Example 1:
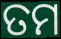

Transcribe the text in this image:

ତମ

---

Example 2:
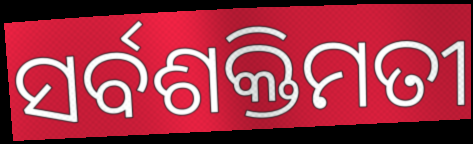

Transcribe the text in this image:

ସର୍ବଶକ୍ତିମତୀ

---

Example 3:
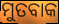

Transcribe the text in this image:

ମୁତବାକ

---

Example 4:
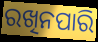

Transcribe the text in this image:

ରଖିନପାରି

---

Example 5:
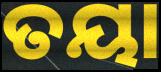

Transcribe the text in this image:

ତୟା